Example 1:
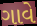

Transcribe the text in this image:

ગાવે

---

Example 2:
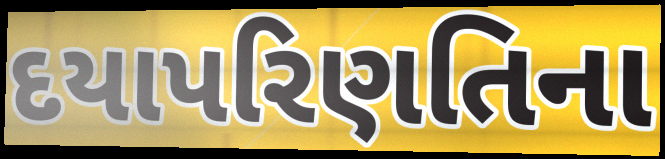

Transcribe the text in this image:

દયાપરિણતિના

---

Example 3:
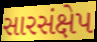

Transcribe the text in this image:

સારસંક્ષેપ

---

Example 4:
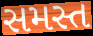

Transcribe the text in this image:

સમસ્ત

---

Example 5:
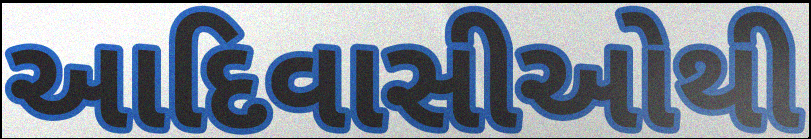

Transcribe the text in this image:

આદિવાસીઓથી